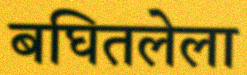
बघितलेला